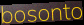
bosonto